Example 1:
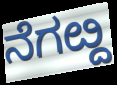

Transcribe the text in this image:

ನೆಗೞ್ದ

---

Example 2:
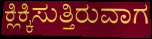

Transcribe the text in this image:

ಕ್ಲಿಕ್ಕಿಸುತ್ತಿರುವಾಗ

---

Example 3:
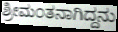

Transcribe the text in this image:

ಶ್ರೀಮಂತನಾಗಿದ್ದನು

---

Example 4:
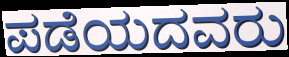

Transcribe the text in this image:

ಪಡೆಯದವರು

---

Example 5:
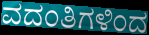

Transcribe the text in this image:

ವದಂತಿಗಳಿಂದ